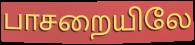
பாசறையிலே